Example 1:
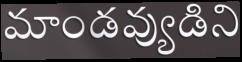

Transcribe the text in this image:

మాండవ్యుడిని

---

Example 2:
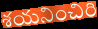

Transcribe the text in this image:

శయనించిరి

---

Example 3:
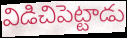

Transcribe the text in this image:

విడిచిపెట్టాడు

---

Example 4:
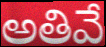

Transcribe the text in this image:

అతివే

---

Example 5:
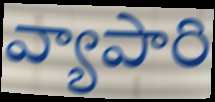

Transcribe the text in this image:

వ్యాపారి